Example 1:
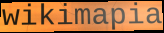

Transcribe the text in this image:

wikimapia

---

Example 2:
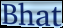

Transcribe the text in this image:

Bhat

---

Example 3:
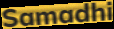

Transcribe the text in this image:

Samadhi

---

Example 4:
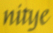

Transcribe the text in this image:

nitye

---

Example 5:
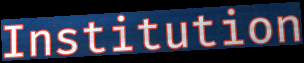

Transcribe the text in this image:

Institution